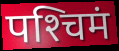
पश्चिमं